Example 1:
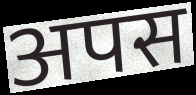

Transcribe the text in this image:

अपस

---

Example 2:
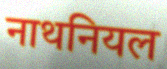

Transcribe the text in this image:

नाथनियल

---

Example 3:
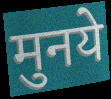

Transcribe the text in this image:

मुनये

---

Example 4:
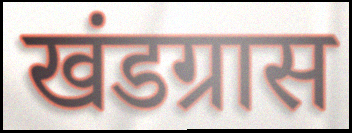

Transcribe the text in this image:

खंडग्रास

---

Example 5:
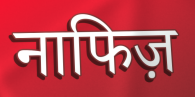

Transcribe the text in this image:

नाफिज़